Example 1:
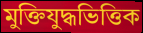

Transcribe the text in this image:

মুক্তিযুদ্ধভিত্তিক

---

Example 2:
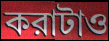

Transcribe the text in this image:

করাটাও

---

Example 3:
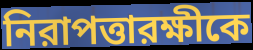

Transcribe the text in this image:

নিরাপত্তারক্ষীকে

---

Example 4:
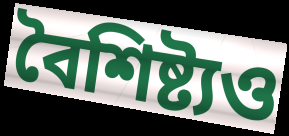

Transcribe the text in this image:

বৈশিষ্ট্যও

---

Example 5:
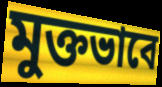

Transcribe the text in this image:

মুক্তভাবে